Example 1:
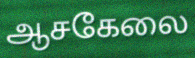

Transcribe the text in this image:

ஆசகேலை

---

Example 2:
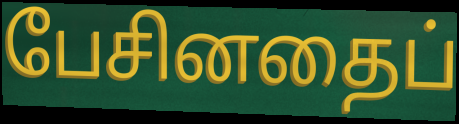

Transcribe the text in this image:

பேசினதைப்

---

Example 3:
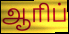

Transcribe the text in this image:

ஆரிப்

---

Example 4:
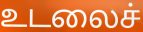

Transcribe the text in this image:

உடலைச்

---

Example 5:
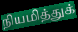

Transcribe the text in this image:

நியமித்துக்